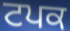
ਟਪਕ